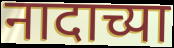
नादाच्या